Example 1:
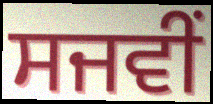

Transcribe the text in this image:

ਸਜਵੀਂ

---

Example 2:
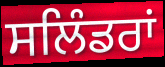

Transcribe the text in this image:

ਸਲਿੰਡਰਾਂ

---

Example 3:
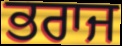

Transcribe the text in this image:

ਭਰਾਜ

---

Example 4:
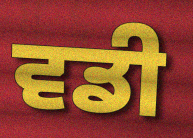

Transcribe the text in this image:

ਵਡੀ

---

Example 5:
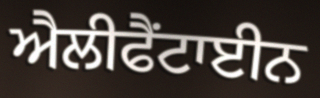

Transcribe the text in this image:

ਐਲੀਫੈਂਟਾਈਨ